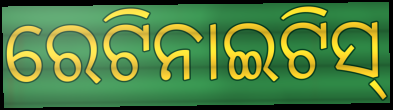
ରେଟିନାଇଟିସ୍